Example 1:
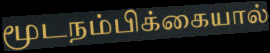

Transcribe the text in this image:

மூடநம்பிக்கையால்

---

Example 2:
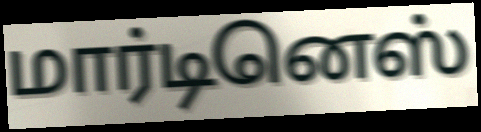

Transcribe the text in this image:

மார்டினெஸ்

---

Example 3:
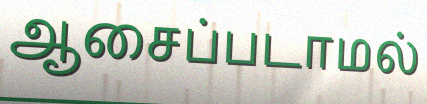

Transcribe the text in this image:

ஆசைப்படாமல்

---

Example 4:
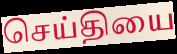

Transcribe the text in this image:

செய்தியை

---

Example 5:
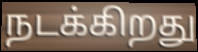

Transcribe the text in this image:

நடக்கிறது